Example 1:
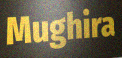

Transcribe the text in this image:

Mughira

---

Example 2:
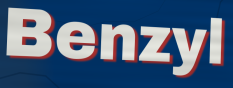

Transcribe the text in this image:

Benzyl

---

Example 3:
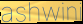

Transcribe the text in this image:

ashwini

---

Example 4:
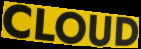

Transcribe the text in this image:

CLOUD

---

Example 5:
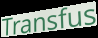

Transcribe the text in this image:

Transfus